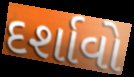
દર્શાવો